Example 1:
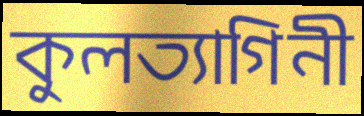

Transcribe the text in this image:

কুলত্যাগিনী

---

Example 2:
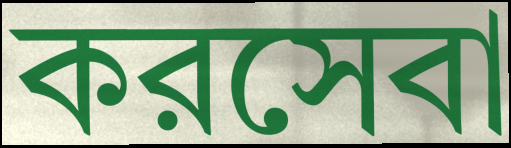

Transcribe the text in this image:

করসেবা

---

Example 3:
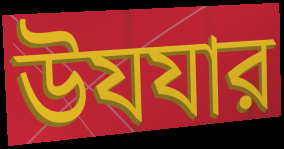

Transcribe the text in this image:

উযযার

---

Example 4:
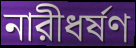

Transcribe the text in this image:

নারীধর্ষণ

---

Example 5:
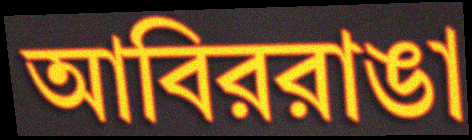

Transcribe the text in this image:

আবিররাঙা